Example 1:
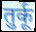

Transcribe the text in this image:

तुर्कू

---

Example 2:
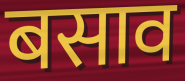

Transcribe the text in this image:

बसाव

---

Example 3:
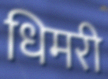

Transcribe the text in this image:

धिमरी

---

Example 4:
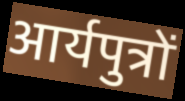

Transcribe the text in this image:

आर्यपुत्रों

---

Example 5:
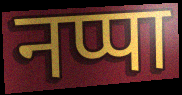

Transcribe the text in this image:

नप्पा